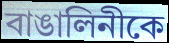
বাঙালিনীকে